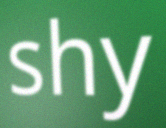
shy